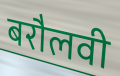
बरौलवी